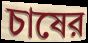
চাষের